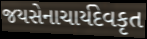
જયસેનાચાર્યદેવકૃત